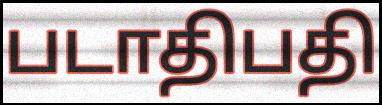
படாதிபதி